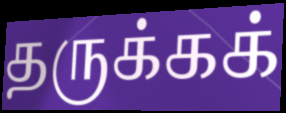
தருக்கக்